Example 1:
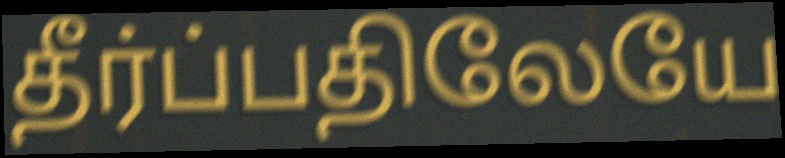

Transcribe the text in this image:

தீர்ப்பதிலேயே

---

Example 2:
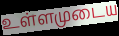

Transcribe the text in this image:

உள்ளமுடைய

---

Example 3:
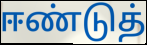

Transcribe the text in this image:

ஈண்டுத்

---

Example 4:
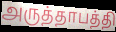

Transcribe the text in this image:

அருத்தாபத்தி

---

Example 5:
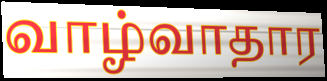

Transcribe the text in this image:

வாழ்வாதார